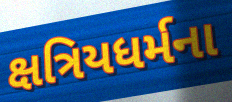
ક્ષત્રિયધર્મના